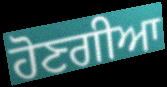
ਹੋਣਗੀਆ